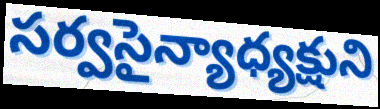
సర్వసైన్యాధ్యక్షుని